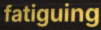
fatiguing